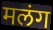
मलंग